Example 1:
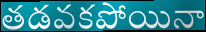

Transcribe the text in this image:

తడవకపోయినా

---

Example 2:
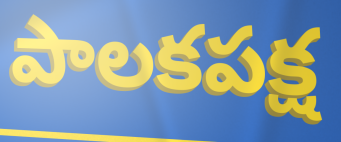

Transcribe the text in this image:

పాలకపక్ష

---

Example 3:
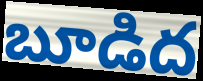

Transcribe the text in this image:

బూడిద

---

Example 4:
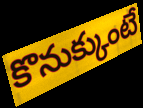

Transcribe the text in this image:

కొనుక్కుంటే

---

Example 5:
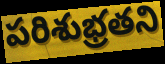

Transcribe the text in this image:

పరిశుభ్రతని